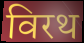
विरथ